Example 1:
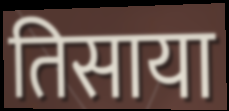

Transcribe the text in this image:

तिसाया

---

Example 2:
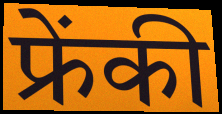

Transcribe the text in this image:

फ्रेंकी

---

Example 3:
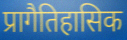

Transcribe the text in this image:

प्रागैतिहासिक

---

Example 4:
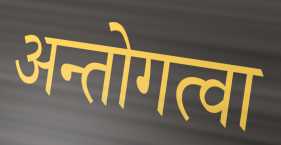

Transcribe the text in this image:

अन्तोगत्वा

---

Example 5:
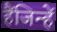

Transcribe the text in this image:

हैंजिन्हें